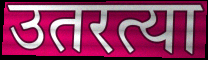
उतरत्या